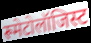
रूमेटोलॉजिस्ट